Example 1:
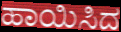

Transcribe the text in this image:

ಹಾಯಿಸಿದ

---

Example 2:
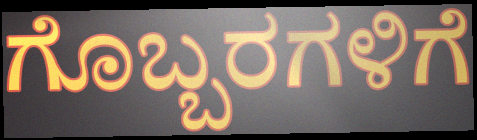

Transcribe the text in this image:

ಗೊಬ್ಬರಗಳಿಗೆ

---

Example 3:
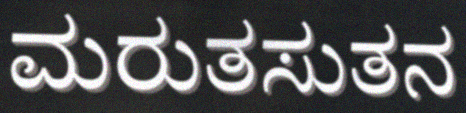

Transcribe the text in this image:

ಮರುತಸುತನ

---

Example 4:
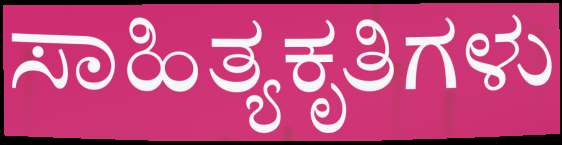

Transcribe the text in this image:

ಸಾಹಿತ್ಯಕೃತಿಗಳು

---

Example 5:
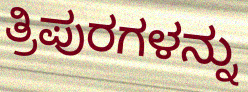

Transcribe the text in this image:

ತ್ರಿಪುರಗಳನ್ನು